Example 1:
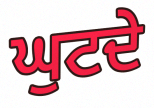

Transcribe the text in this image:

ਘੁਟਦੇ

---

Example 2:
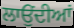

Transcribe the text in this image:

ਲਾਉੰਦੀਆਂ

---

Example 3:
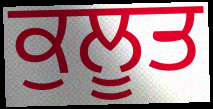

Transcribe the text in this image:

ਕੁਲੂਤ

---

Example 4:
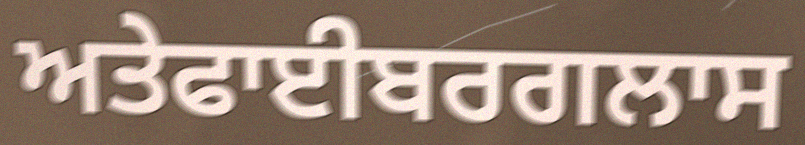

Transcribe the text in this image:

ਅਤੇਫਾਈਬਰਗਲਾਸ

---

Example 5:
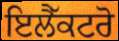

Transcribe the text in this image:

ਇਲੈੱਕਟਰੋ